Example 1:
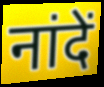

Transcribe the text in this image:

नांदें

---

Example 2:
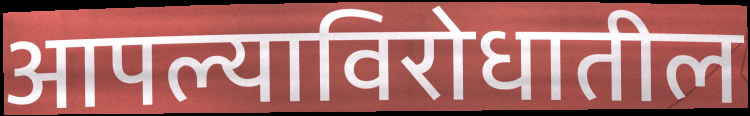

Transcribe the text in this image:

आपल्याविरोधातील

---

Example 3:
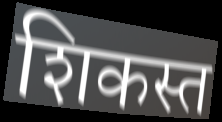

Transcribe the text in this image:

शिकस्त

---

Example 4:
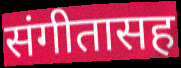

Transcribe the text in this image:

संगीतासह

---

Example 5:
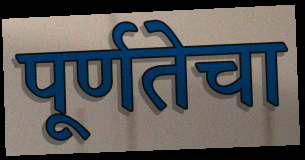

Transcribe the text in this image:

पूर्णतेचा